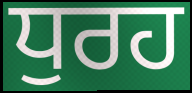
ਧੁਰਹ